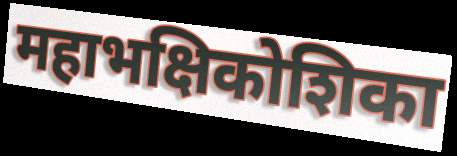
महाभक्षिकोशिका